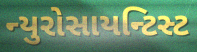
ન્યુરોસાયન્ટિસ્ટ